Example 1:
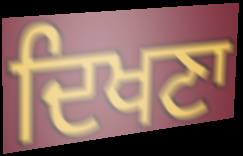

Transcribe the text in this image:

ਦਿਖਣਾ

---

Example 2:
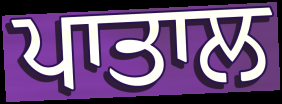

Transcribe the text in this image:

ਪਾਤਾਲ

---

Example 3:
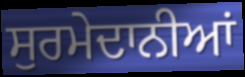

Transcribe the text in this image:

ਸੁਰਮੇਦਾਨੀਆਂ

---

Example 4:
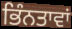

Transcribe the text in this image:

ਭਿੰਨਤਾਵਾਂ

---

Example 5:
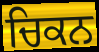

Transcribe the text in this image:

ਚਿਕਨ